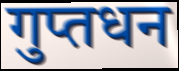
गुप्तधन